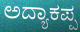
ಅದ್ಯಾಕಪ್ಪ